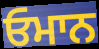
ਓਮਾਨ